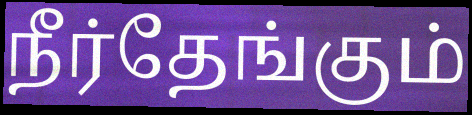
நீர்தேங்கும்